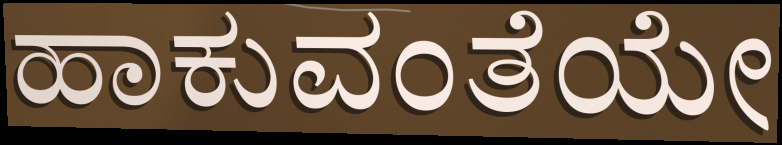
ಹಾಕುವಂತೆಯೇ